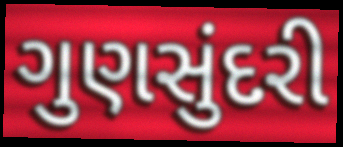
ગુણસુંદરી